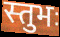
स्तुभः